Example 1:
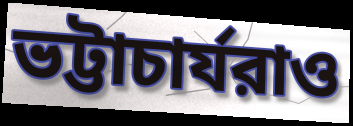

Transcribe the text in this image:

ভট্টাচার্যরাও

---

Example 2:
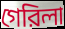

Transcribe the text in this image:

গেরিলা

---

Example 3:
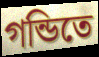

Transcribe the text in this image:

গন্ডিতে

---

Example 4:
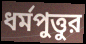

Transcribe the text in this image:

ধর্মপুত্তুর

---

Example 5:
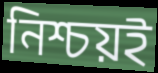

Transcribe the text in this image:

নিশ্চয়ই